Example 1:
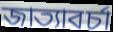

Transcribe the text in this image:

জাত্যাবৰ্চা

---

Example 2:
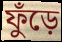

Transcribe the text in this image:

ফুঁড়ে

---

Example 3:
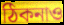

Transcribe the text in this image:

ঠিকনাও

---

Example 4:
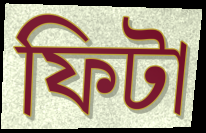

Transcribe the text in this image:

ফিটা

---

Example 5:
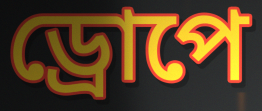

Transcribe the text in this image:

ড্ৰোপে